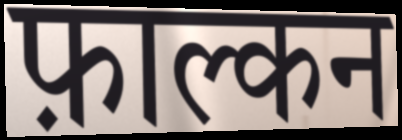
फ़ाल्कन